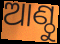
ଆଣ୍ଠୁ